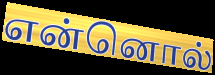
என்னொல்